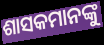
ଶାସକମାନଙ୍କୁ